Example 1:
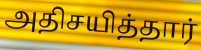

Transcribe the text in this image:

அதிசயித்தார்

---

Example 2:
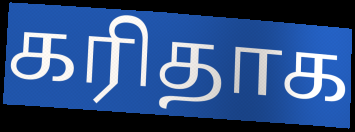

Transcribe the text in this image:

கரிதாக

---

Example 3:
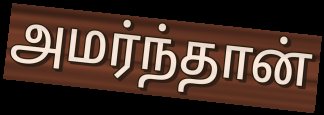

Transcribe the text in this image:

அமர்ந்தான்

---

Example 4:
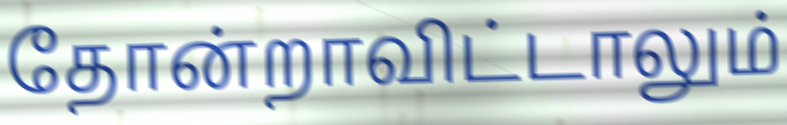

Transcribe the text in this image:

தோன்றாவிட்டாலும்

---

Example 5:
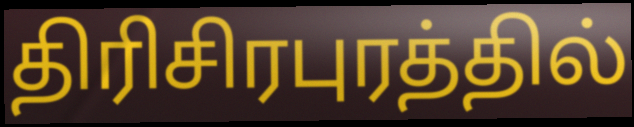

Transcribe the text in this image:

திரிசிரபுரத்தில்